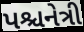
પશ્ચનેત્રી